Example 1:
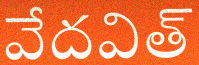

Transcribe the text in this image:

వేదవిత్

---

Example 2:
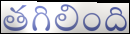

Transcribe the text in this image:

తగిలింది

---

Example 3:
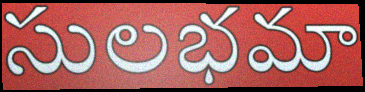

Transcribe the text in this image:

సులభమా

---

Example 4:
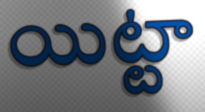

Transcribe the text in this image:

యిట్టా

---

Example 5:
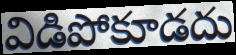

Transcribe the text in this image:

విడిపోకూడదు